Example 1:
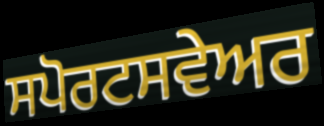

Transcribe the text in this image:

ਸਪੋਰਟਸਵੇਅਰ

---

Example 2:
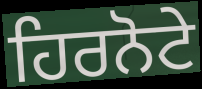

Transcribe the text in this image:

ਹਿਰਨੋਟੇ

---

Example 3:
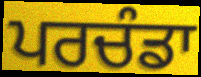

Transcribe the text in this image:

ਪਰਚੰਡਾ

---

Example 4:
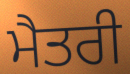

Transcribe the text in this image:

ਮੈਤਰੀ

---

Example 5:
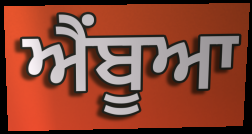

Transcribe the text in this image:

ਐਂਬੂਆ